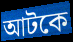
আটকে